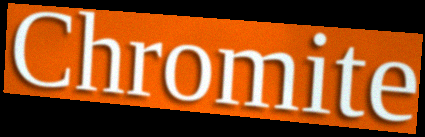
Chromite